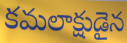
కమలాక్షుడైన